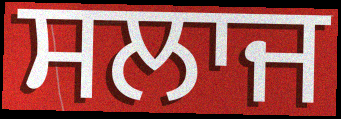
ਸਲਾਜ